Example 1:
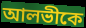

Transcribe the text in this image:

আলভীকে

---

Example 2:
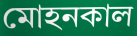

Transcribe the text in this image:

মোহনকাল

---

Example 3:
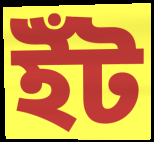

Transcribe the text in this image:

ইঁট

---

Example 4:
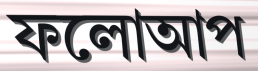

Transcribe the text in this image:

ফলোআপ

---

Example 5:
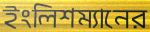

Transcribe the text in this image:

ইংলিশম্যানের